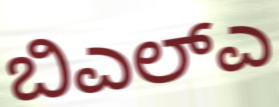
ಬಿಎಲ್ಎ